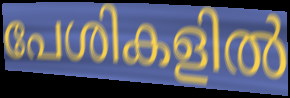
പേശികളിൽ